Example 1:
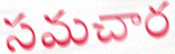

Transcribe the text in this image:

సమచార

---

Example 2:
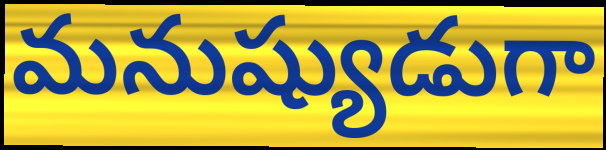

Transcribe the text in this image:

మనుష్యుడుగా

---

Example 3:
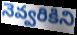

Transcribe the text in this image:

నెవ్వరికిని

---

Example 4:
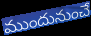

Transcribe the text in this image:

ముందునుంచే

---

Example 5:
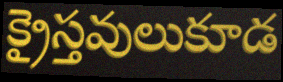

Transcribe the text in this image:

క్రైస్తవులుకూడ